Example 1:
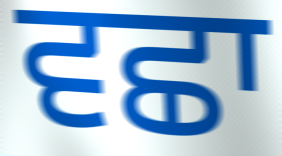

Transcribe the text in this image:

ਵਛਾ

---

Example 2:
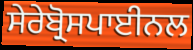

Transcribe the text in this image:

ਸੇਰੇਬ੍ਰੋਸਪਾਈਨਲ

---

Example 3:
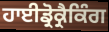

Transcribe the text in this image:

ਹਾਈਡ੍ਰੋਕ੍ਰੈਕਿੰਗ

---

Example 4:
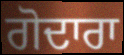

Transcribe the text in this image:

ਗੋਦਾਰਾ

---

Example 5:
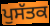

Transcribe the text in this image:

ਪੁਸੱਤਕ